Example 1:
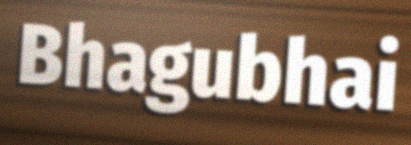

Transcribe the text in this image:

Bhagubhai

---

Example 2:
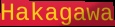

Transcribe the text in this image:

Hakagawa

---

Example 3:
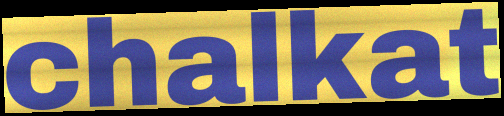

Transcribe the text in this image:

chalkat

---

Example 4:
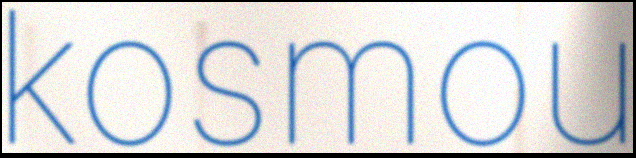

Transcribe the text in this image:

kosmou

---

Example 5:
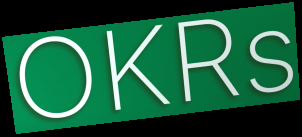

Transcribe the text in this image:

OKRs